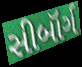
સીબૉર્ગ